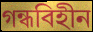
গন্ধবিহীন